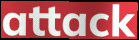
attack